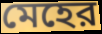
মেহের